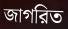
জাগরিত